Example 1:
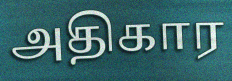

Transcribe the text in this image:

அதிகார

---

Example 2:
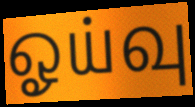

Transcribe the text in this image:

ஓய்வு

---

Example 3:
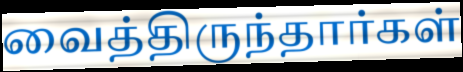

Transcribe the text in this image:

வைத்திருந்தார்கள்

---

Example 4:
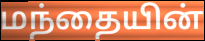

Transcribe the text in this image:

மந்தையின்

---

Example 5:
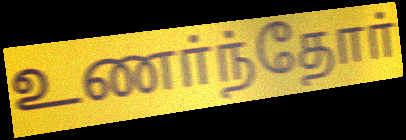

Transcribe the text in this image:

உணர்ந்தோர்